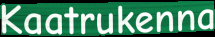
Kaatrukenna